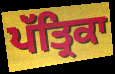
ਪੱਤ੍ਰਿਕਾ